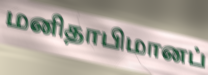
மனிதாபிமானப்